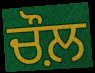
ਚੌਲ਼